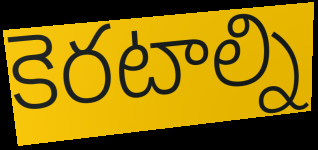
కెరటాల్ని